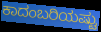
ಕಾದಂಬರಿಯಷ್ಟು